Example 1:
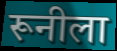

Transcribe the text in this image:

रूनीला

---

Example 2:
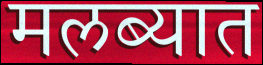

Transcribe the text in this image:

मलब्यात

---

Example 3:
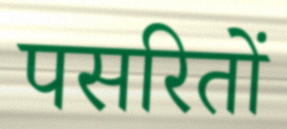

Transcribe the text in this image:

पसरितों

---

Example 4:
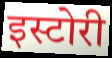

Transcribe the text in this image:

इस्टोरी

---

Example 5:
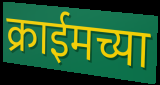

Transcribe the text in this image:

क्राईमच्या